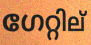
ഗേറ്റില്